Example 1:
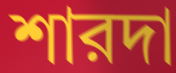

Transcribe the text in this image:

শারদা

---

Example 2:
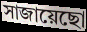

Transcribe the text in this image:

সাজায়েছো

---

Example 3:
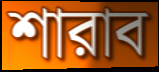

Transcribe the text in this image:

শারাব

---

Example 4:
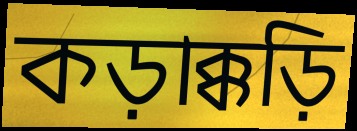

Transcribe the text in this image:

কড়াক্কড়ি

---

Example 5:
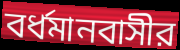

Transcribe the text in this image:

বর্ধমানবাসীর